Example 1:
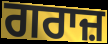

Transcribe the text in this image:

ਗਰਾਜ਼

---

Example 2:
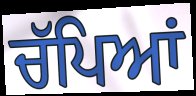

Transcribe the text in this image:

ਚੱਪਿਆਂ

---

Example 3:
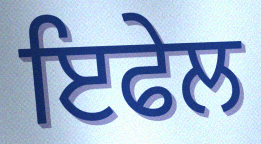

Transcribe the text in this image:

ਇਫੇਲ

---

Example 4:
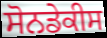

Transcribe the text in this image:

ਸੋਨਡੇਕੀਸ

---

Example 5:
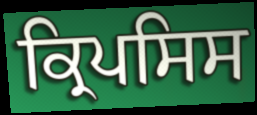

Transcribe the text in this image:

ਕ੍ਰਿਪਸਿਸ